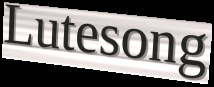
Lutesong